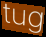
tug